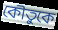
কৌতুকে